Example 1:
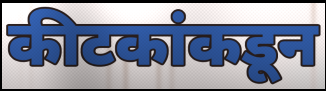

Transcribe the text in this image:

कीटकांकडून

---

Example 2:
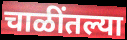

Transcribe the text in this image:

चाळींतल्या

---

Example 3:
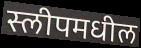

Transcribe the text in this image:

स्लीपमधील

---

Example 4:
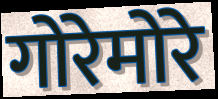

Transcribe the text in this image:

गोरेमोरे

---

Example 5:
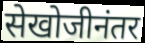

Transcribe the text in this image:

सेखोजीनंतर